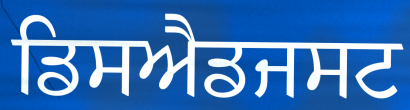
ਡਿਸਐਡਜਸਟ